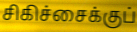
சிகிச்சைக்குப்